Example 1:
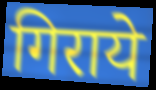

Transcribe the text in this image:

गिराये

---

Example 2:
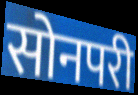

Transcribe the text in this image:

सोनपरी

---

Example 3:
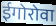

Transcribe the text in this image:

ईगोरोवा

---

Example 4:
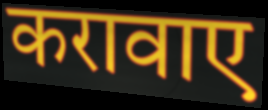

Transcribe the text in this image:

करावाए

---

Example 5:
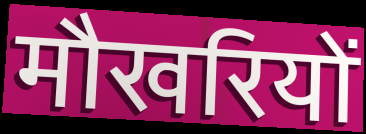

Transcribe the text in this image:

मौखरियों